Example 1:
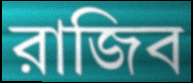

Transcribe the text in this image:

রাজিব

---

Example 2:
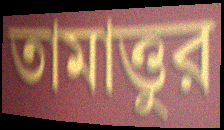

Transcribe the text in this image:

তামাত্তুর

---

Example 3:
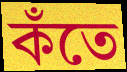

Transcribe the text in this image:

কঁতে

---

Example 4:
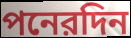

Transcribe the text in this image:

পনেরদিন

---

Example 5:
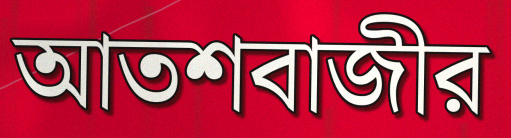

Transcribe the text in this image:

আতশবাজীর